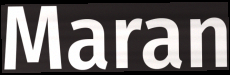
Maran